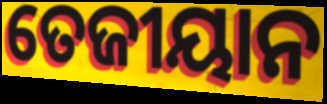
ତେଜୀୟାନ